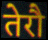
तेरौ